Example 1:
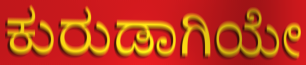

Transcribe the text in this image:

ಕುರುಡಾಗಿಯೇ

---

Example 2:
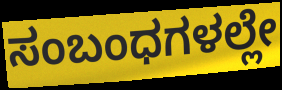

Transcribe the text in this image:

ಸಂಬಂಧಗಳಲ್ಲೇ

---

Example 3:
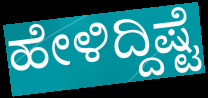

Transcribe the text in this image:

ಹೇಳಿದ್ದಿಷ್ಟೆ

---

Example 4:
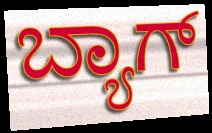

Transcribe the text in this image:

ಬ್ಯಾಗ್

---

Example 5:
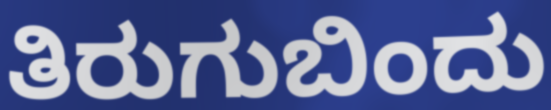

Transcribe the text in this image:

ತಿರುಗುಬಿಂದು